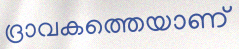
ദ്രാവകത്തെയാണ്